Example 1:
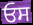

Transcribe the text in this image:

ਓਸ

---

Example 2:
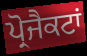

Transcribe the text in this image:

ਪ੍ਰੋਜੈਕਟਾਂ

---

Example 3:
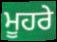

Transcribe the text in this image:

ਮੂਹਰੇ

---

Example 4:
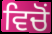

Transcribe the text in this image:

ਵਿਚੋਂ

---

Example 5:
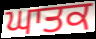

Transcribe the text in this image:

ਘਾਤਕ